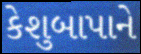
કેશુબાપાને